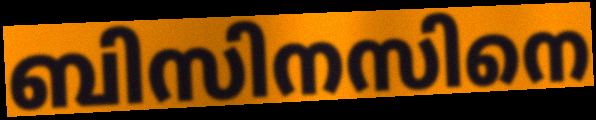
ബിസിനസിനെ